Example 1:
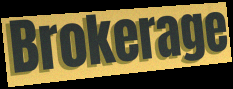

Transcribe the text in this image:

Brokerage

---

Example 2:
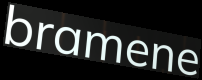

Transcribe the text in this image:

bramene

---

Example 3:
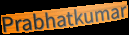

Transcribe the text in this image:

Prabhatkumar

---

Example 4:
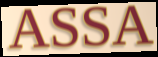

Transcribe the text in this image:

ASSA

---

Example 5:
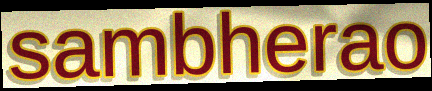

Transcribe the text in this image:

sambherao